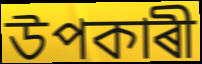
উপকাৰী